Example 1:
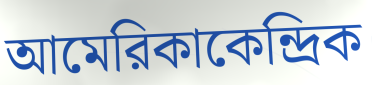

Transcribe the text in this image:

আমেরিকাকেন্দ্রিক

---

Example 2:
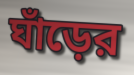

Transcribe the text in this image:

ঘাঁড়ের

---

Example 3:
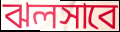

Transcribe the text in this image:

ঝলসাবে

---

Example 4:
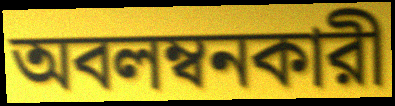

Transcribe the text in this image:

অবলম্বনকারী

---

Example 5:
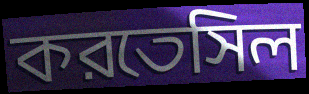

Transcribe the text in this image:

করতেসিল